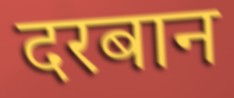
दरबान